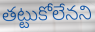
తట్టుకోలేనని